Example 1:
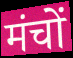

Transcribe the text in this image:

मंचों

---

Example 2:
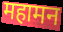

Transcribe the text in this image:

महामन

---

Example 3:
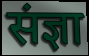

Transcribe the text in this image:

संज्ञा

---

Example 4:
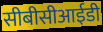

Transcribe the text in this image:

सीबीसीआईडी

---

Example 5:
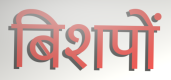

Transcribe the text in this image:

बिशपों